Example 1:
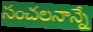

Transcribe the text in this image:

సంచలనాన్నే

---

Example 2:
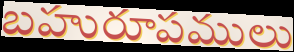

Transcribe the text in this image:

బహురూపములు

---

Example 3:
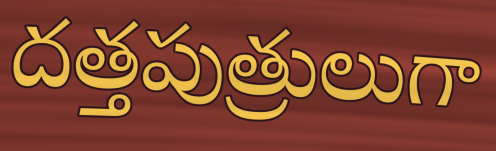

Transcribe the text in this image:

దత్తపుత్రులుగా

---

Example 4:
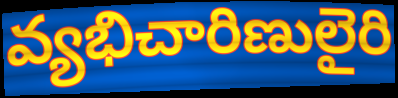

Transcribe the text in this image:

వ్యభిచారిణులైరి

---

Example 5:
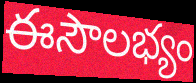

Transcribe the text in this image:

ఈసౌలభ్యం